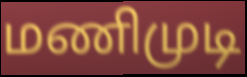
மணிமுடி